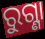
ରୁଗ୍ଣା